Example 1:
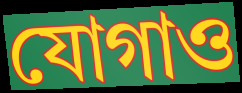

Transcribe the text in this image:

যোগাও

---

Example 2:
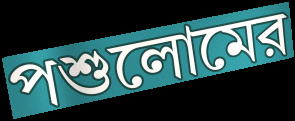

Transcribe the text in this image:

পশুলোমের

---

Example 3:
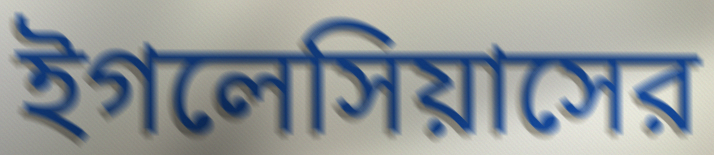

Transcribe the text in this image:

ইগলেসিয়াসের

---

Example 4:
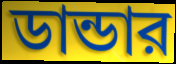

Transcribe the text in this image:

ডান্ডার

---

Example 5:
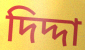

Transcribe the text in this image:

দিদ্দা